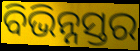
ବିଭିନ୍ନସ୍ତର